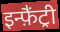
इन्फ़ैंट्री